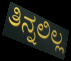
ತಿನ್ನಲಿಲ್ಲ